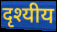
दृश्यीय